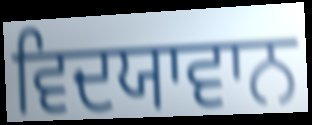
ਵਿਦਯਾਵਾਨ